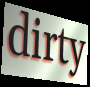
dirty